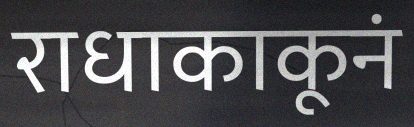
राधाकाकूनं